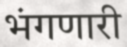
भंगणारी